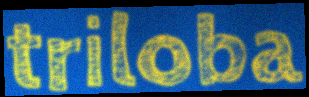
triloba